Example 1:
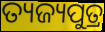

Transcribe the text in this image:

ତ୍ୟଜ୍ୟପୁତ୍ର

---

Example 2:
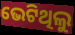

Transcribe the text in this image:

ଭେଟିଥିଲୁ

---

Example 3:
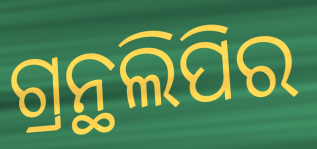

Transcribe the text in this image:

ଗ୍ରନ୍ଥଲିପିର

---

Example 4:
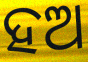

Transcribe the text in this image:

ହଅ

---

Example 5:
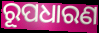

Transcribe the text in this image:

ରୂପଧାରଣ